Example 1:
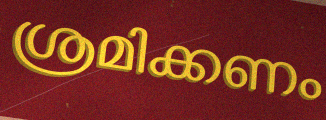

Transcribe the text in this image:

ശ്രമിക്കണം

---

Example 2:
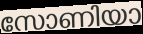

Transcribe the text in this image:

സോണിയാ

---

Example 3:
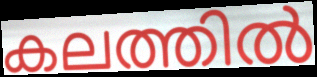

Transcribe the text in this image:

കലത്തിൽ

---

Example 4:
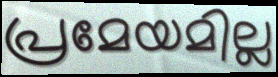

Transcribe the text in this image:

പ്രമേയമില്ല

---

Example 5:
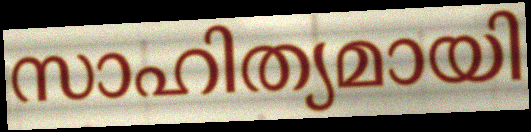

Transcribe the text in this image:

സാഹിത്യമായി